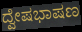
ದ್ವೇಷಭಾಷಣ